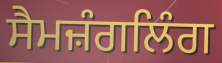
ਸੈਮਜ਼ੰਗਲਿੰਗ